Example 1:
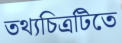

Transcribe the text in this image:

তথ্যচিত্রটিতে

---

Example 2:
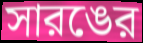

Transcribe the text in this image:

সারঙের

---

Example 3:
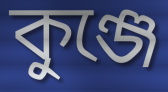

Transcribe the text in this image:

কুঞ্জে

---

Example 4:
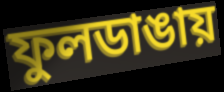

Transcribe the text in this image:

ফুলডাঙায়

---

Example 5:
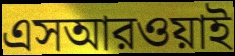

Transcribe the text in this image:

এসআরওয়াই